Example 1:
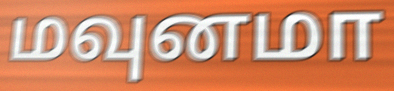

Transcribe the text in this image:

மவுனமா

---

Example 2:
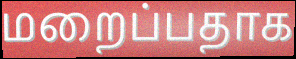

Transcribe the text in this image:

மறைப்பதாக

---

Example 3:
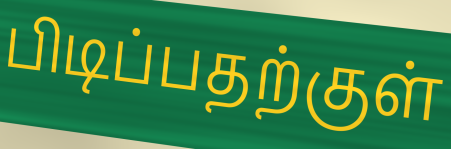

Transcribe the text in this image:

பிடிப்பதற்குள்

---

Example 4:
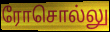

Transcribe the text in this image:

ரோசொல்லு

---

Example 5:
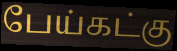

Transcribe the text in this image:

பேய்கட்கு